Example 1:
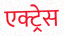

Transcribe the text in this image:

एक्ट्र्रेस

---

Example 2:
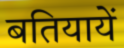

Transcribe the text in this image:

बतियायें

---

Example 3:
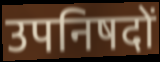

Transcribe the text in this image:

उपनिषदों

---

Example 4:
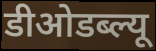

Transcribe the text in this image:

डीओडब्ल्यू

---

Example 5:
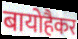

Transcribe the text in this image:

बायोहैकर